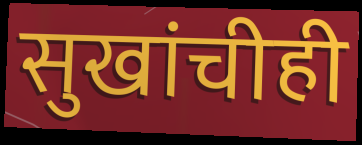
सुखांचीही